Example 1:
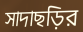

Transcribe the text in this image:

সাদাছড়ির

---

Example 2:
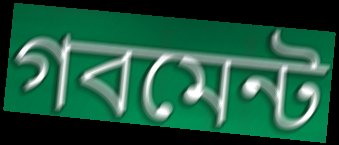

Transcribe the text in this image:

গবমেন্ট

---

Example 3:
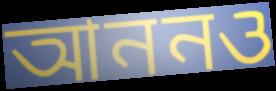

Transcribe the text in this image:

আননও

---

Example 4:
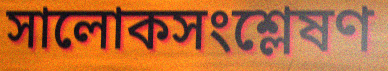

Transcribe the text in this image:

সালোকসংশ্লেষণ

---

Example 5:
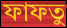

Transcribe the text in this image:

ফাফতু